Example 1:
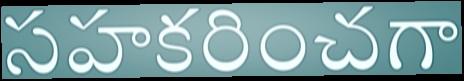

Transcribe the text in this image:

సహకరించగా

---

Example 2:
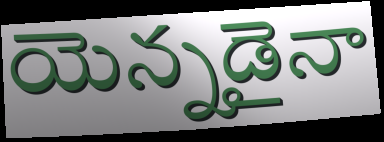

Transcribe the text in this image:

యెన్నడైనా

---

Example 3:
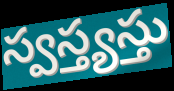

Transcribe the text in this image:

స్వస్త్యస్తు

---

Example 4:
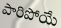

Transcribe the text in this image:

పారిపోయే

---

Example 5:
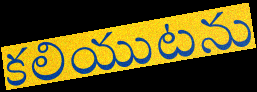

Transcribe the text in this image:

కలియుటను